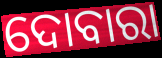
ଦୋବାରା